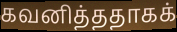
கவனித்ததாகக்